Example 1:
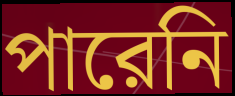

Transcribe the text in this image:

পারেনি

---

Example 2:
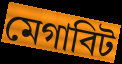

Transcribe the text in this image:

মেগাবিট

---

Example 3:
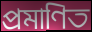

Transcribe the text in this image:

প্রমাণিত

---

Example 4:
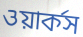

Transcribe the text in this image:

ওয়ার্কস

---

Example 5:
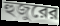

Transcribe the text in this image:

হুজুরের